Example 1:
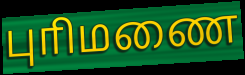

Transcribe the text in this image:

புரிமணை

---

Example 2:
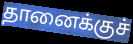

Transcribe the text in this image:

தானைக்குச்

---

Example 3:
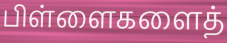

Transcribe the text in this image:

பிள்ளைகளைத்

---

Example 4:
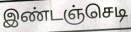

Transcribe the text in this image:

இண்டஞ்செடி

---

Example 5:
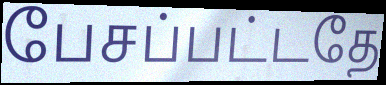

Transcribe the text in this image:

பேசப்பட்டதே